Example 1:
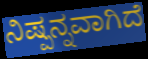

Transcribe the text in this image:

ನಿಷ್ಪನ್ನವಾಗಿದೆ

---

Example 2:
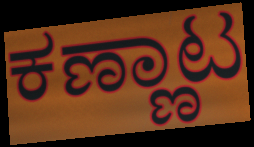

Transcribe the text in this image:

ಕಣ್ಣಾಟ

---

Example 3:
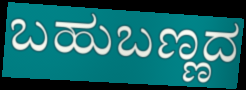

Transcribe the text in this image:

ಬಹುಬಣ್ಣದ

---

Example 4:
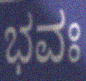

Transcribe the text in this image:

ಭವಃ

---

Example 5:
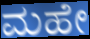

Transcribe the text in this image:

ಮಹೇ